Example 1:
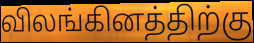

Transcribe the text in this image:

விலங்கினத்திற்கு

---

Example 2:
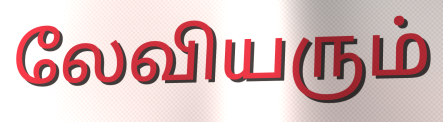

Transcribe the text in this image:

லேவியரும்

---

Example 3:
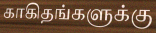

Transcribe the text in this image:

காகிதங்களுக்கு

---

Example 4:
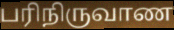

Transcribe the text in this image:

பரிநிருவாண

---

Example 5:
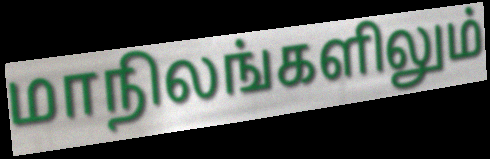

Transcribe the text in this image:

மாநிலங்களிலும்